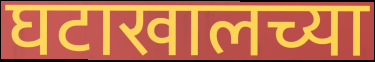
घटाखालच्या